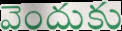
వెందుకు